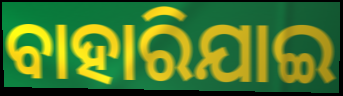
ବାହାରିଯାଇ